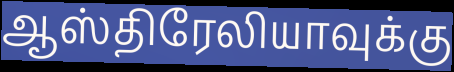
ஆஸ்திரேலியாவுக்கு